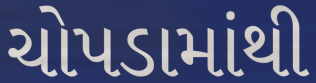
ચોપડામાંથી